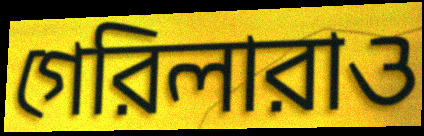
গেরিলারাও